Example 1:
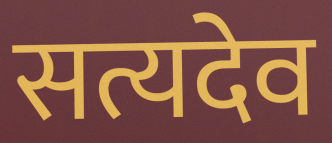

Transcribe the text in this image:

सत्यदेव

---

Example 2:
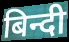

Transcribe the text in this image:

बिन्दी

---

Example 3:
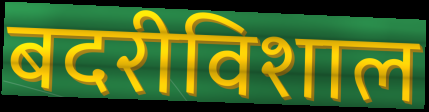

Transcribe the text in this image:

बदरीविशाल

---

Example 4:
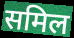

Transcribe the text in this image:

समिल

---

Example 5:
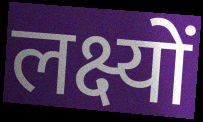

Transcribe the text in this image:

लक्ष्यों